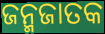
ଜନ୍ମଜାତକ